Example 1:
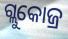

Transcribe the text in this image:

ଗ୍ଲୁକୋଜ୍ର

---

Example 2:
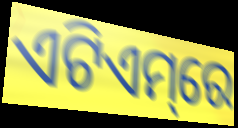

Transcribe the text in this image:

ଏଟିଏମ୍‌ରେ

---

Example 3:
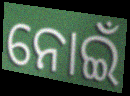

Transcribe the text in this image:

ନୋଇଁ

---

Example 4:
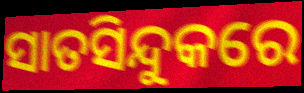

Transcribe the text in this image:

ସାତସିନ୍ଦୁକରେ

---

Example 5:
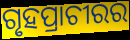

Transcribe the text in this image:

ଗୃହପ୍ରାଚୀରର